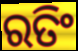
ରତିଂ